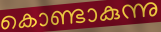
കൊണ്ടാകുന്നു